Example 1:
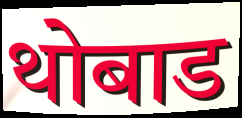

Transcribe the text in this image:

थोबाड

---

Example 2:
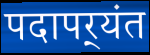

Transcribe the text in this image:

पदापर्यंत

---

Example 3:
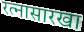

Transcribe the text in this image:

रत्नासारखा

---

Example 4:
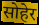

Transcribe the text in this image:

सोहेर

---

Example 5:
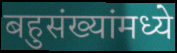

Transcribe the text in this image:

बहुसंख्यांमध्ये